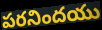
పరనిందయు